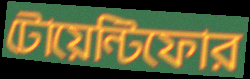
টোয়েন্টিফোর